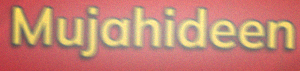
Mujahideen